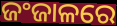
ଜଂଜାଳରେ